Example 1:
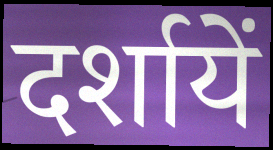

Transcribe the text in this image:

दर्शायें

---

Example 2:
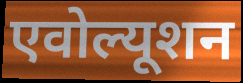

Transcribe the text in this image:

एवोल्यूशन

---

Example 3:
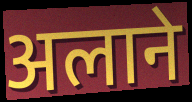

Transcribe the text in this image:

अलाने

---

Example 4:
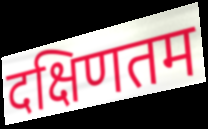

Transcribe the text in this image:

दक्षिणतम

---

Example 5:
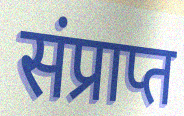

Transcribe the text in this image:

संप्राप्त